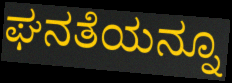
ಘನತೆಯನ್ನೂ